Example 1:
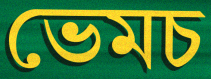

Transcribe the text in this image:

ভেমচ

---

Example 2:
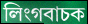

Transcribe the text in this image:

লিংগবাচক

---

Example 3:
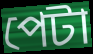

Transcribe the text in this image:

পেটা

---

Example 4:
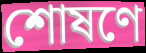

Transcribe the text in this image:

শোষণে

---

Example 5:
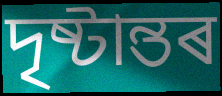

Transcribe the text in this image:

দৃষ্টান্তৰ